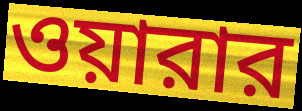
ওয়ারার